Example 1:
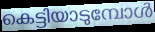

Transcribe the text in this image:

കെട്ടിയാടുമ്പോൾ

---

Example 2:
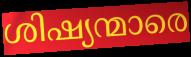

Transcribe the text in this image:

ശിഷ്യന്മാരെ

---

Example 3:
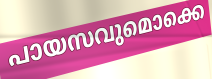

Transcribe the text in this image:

പായസവുമൊക്കെ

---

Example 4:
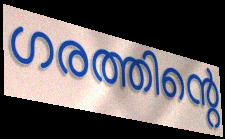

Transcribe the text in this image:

ഗരത്തിന്റെ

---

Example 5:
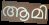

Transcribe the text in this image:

ആമി